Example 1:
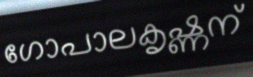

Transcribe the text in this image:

ഗോപാലകൃഷ്ണന്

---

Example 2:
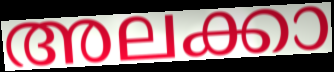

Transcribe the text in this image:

അലക്കാ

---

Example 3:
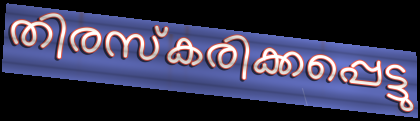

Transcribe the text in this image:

തിരസ്കരിക്കപ്പെട്ടു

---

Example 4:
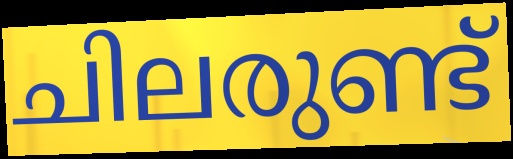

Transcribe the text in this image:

ചിലരുണ്ട്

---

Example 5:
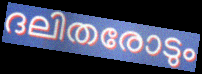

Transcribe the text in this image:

ദലിതരോടും